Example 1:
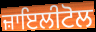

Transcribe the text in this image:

ਜ਼ਾਇਲੀਟੋਲ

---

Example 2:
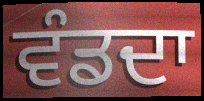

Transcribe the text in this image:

ਵੰਡਦਾ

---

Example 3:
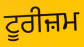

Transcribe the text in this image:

ਟੂਰੀਜ਼ਮ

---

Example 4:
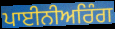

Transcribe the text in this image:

ਪਾਈਨੀਅਰਿੰਗ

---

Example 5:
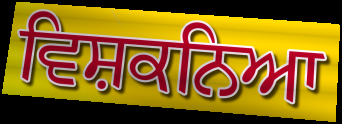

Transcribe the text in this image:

ਵਿਸ਼ਕਨਿਆ